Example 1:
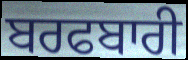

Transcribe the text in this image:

ਬਰਫਬਾਰੀ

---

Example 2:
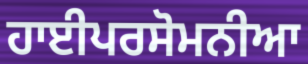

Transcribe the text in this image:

ਹਾਈਪਰਸੋਮਨੀਆ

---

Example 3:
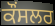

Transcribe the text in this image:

ਕੌੰਸਲਰ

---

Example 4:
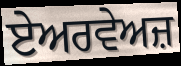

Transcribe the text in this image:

ਏਅਰਵੇਅਜ਼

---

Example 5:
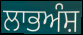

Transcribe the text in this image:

ਲਾਭਅੰਸ਼